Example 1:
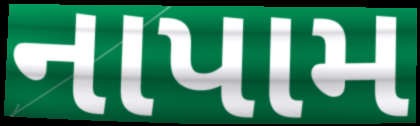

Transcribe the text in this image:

નાપામ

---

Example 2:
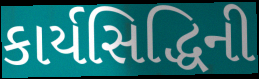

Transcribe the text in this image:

કાર્યસિદ્ધિની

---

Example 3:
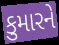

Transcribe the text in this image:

કુમારને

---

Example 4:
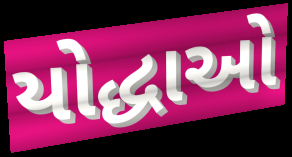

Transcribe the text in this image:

યોદ્ધાઓ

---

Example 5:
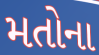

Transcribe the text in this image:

મતોના